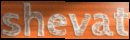
shevat